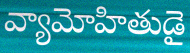
వ్యామోహితుడై